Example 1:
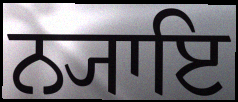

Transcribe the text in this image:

ਨ੍ਯਾਇ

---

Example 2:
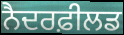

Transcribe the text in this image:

ਨੈਦਰਫ਼ੀਲਡ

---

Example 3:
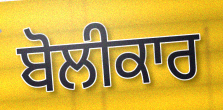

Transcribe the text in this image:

ਬੋਲੀਕਾਰ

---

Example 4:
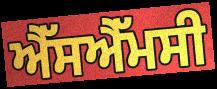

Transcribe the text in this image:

ਐੱਸਐੱਮਸੀ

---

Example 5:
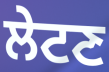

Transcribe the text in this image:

ਲੇਟਣ